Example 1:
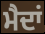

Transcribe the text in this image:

ਮੈਦਾਂ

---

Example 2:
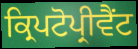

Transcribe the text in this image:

ਕ੍ਰਿਪਟੋਪ੍ਰੀਵੈਂਟ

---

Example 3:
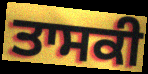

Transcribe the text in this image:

ਤਾਸਕੀ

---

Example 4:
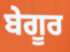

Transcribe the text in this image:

ਬੇਗੂਰ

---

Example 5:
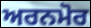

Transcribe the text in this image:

ਅਰਨਮੋਰ